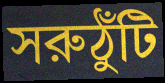
সরুঠুঁটি